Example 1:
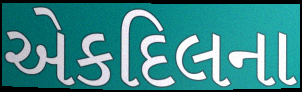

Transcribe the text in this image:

એકદિલના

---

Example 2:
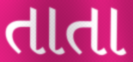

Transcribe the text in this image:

તાતા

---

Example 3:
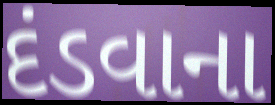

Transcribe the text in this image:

દંડવાના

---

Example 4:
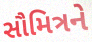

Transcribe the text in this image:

સૌમિત્રને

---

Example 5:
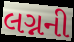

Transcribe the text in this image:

લગ્નની